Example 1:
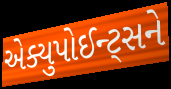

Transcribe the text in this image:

એક્યુપોઈન્ટ્સને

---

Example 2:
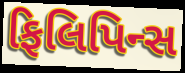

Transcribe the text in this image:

ફિલિપિન્સ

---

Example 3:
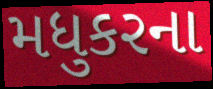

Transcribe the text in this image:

મધુકરના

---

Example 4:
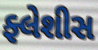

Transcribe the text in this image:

ફ્લેશીસ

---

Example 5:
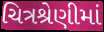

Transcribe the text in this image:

ચિત્રશ્રેણીમાં